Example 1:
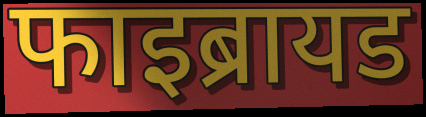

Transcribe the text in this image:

फाइब्रायड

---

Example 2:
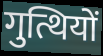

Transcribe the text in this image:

गुत्थियों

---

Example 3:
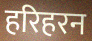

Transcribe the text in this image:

हरिहरन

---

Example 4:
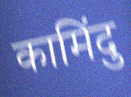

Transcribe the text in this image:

कामिंदु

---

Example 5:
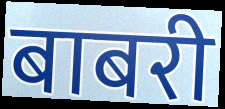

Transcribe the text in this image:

बाबरी